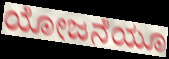
ಯೋಜನೆಯೂ